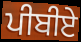
ਪੀਬੀਏ